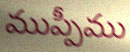
ముప్పీము